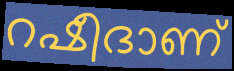
റഷീദാണ്